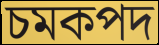
চমকপদ